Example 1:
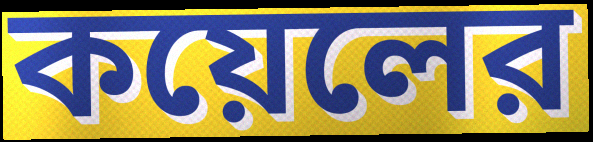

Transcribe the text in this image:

কয়েলের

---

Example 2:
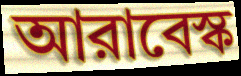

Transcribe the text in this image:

আরাবেস্ক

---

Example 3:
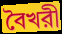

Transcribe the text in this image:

বৈখরী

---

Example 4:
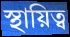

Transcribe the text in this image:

স্থায়িত্ব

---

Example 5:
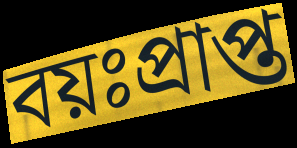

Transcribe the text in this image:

বয়ঃপ্রাপ্ত